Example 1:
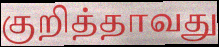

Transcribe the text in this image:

குறித்தாவது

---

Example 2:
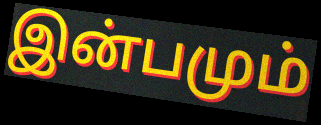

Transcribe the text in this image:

இன்பமும்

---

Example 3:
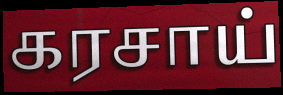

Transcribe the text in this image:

கரசாய்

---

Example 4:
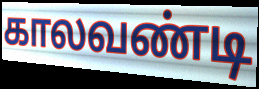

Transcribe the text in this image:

காலவண்டி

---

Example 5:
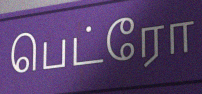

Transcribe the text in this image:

பெட்ரோ